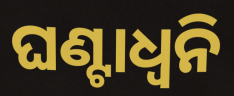
ଘଣ୍ଟାଧ୍ୱନି